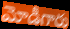
మోడీగారు